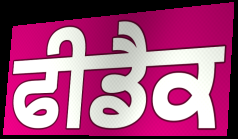
ਫੀਡੈਕ